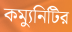
কম্যুনিটির